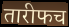
तारीफच